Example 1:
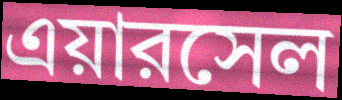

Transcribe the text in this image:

এয়ারসেল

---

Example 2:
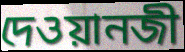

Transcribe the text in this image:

দেওয়ানজী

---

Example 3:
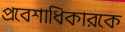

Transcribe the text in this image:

প্রবেশাধিকারকে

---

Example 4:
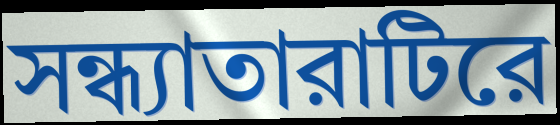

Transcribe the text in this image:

সন্ধ্যাতারাটিরে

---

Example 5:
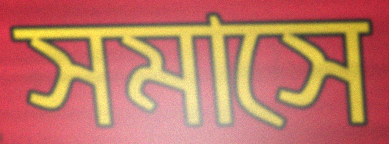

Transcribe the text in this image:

সমাসে